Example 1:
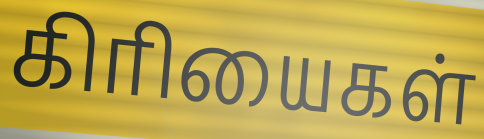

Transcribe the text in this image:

கிரியைகள்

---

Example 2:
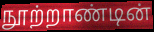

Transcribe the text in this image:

நூற்றாண்டின்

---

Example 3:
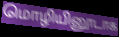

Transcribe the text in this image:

மொழியினூடாக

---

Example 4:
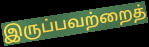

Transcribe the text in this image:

இருப்பவற்றைத்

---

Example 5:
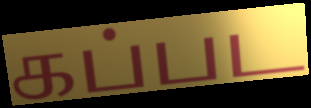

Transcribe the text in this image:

கப்பட